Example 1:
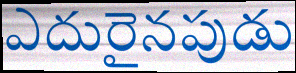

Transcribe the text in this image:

ఎదురైనపుడు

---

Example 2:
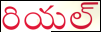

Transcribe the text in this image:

రియల్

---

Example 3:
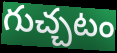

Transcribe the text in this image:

గుచ్చటం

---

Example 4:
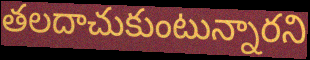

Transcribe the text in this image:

తలదాచుకుంటున్నారని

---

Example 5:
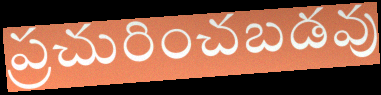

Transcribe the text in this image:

ప్రచురించబడవు